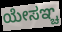
ಯೇಸಞ್ಚ